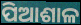
ପିଆଶାଳ